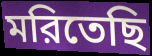
মরিতেছি